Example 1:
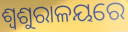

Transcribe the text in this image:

ଶ୍ଵଶୁରାଳୟରେ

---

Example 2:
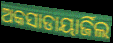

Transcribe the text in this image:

ଅକସାଡାୟାର୍ଜିଲ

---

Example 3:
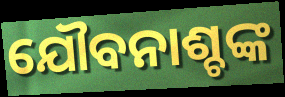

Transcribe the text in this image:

ଯୌବନାଶ୍ଚଙ୍କ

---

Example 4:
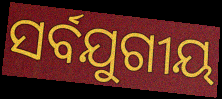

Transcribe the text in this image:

ସର୍ବଯୁଗୀୟ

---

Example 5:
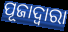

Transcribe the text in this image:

ପୂଜାଦ୍ୱାରା